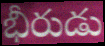
భీరుడు